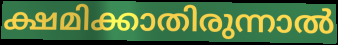
ക്ഷമിക്കാതിരുന്നാൽ